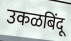
उकळबिंदू